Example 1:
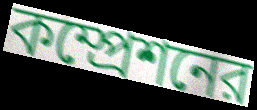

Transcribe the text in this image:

কম্প্রেশনের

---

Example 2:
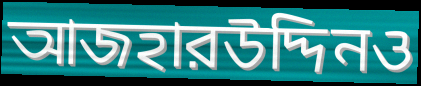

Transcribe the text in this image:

আজহারউদ্দিনও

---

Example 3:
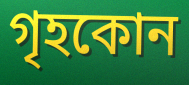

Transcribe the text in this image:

গৃহকোন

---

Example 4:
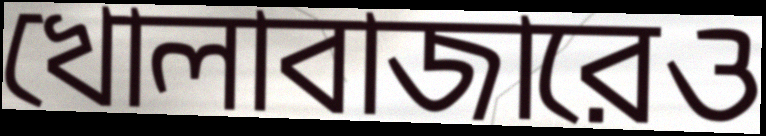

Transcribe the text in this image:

খোলাবাজারেও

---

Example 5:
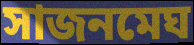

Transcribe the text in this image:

সাজনমেঘ